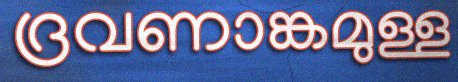
ദ്രവണാങ്കമുള്ള